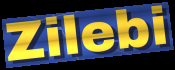
Zilebi